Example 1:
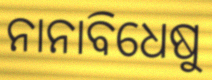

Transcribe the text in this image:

ନାନାବିଧେଷୁ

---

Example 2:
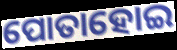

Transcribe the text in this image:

ପୋତାହୋଇ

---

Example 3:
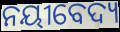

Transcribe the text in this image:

ନୟୀବେଦ୍ୟ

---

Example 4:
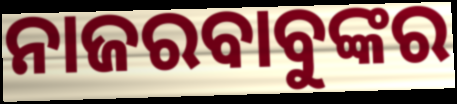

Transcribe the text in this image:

ନାଜରବାବୁଙ୍କର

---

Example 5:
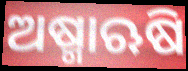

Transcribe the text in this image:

ଅଷ୍ମାଋଷି